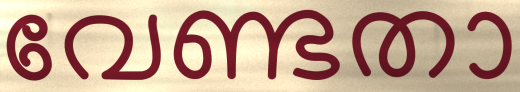
വേണ്ടതാ